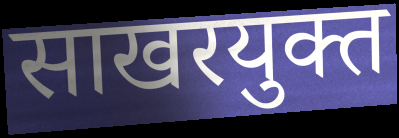
साखरयुक्त